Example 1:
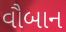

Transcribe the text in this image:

વૌબાન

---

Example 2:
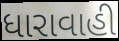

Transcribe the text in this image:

ધારાવાહી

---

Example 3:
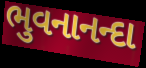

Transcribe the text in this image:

ભુવનાનન્દા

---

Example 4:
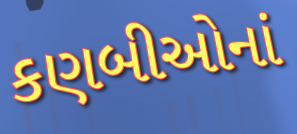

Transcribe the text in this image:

કણબીઓનાં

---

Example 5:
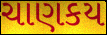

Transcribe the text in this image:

ચાણકય